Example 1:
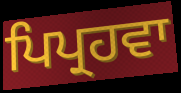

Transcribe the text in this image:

ਪਿਪ੍ਰਹਵਾ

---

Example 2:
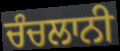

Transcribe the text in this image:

ਚੰਚਲਾਨੀ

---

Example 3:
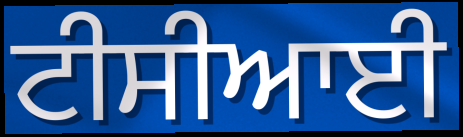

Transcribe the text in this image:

ਟੀਸੀਆਈ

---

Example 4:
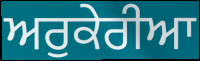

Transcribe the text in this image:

ਅਰੁਕੇਰੀਆ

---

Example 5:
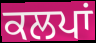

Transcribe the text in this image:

ਕਲਪਾਂ